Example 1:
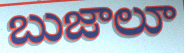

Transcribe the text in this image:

బుజాలూ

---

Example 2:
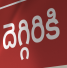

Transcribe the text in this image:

దెగ్గిరికి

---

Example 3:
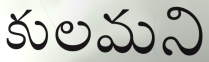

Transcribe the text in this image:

కులమని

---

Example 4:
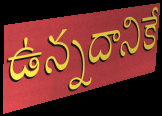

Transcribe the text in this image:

ఉన్నదానికే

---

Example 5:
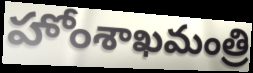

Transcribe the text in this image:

హోంశాఖమంత్రి